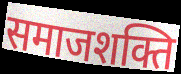
समाजशक्ति